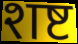
शष्ट